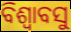
ବିଶ୍ୱାବସୁ